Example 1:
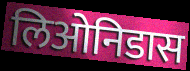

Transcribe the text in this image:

लिओनिडास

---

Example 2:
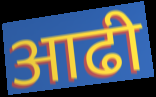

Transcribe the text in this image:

आढी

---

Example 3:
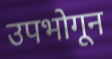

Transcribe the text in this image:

उपभोगून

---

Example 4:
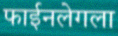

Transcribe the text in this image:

फाईनलेगला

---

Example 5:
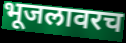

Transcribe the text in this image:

भूजलावरच